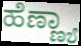
ಹೆಣ್ಣ್ಯಾ